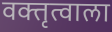
वक्तृत्वाला